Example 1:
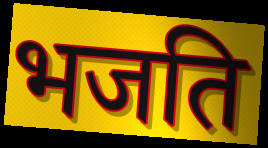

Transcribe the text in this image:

भजति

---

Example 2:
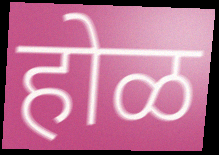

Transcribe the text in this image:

होळ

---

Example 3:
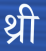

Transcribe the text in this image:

थ्री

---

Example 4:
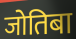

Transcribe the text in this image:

जोतिबा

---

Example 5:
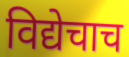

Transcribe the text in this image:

विद्येचाच